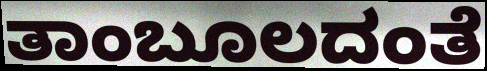
ತಾಂಬೂಲದಂತೆ